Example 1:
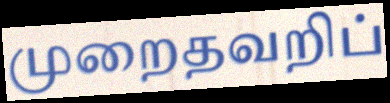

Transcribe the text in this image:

முறைதவறிப்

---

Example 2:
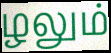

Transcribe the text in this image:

ழலும்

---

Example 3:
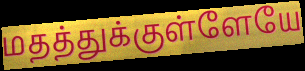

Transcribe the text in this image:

மதத்துக்குள்ளேயே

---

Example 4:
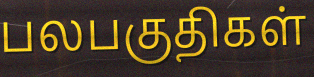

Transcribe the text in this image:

பலபகுதிகள்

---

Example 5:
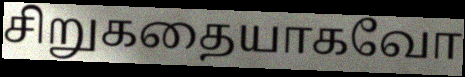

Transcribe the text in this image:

சிறுகதையாகவோ